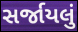
સર્જાયલું